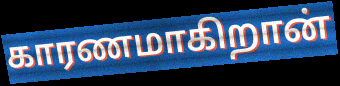
காரணமாகிறான்